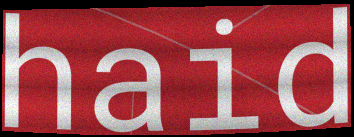
haid